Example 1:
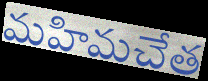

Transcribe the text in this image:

మహిమచేత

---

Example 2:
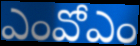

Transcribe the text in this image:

ఎంవోఎం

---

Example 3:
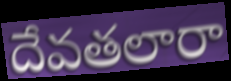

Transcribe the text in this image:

దేవతలారా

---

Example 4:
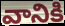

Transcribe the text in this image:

వానికి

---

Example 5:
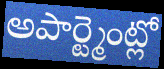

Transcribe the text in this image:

అపార్ట్మెంట్లో